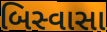
બિસ્વાસા